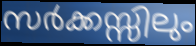
സർക്കസ്സിലും